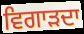
ਵਿਗਾੜਦਾ